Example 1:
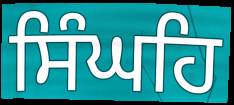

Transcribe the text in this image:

ਸਿੰਘਹਿ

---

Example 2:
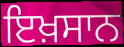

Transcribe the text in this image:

ਇਖ਼ਸਾਨ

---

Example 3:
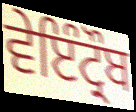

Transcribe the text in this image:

ਵੇਇੰਟ੍ਰੌਬ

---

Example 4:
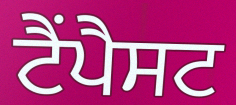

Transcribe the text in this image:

ਟੈਂਪੈਸਟ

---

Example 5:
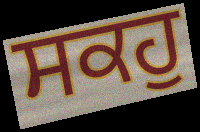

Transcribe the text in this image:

ਸਕਹੁ